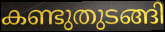
കണ്ടുതുടങ്ങി